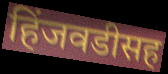
हिंजवडीसह